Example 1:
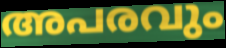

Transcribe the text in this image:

അപരവും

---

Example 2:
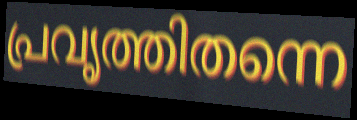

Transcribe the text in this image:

പ്രവൃത്തിതന്നെ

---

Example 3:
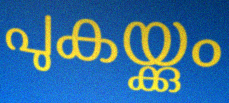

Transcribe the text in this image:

പുകയ്ക്കും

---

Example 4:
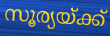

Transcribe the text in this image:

സൂര്യയ്ക്ക്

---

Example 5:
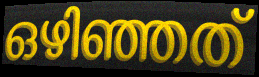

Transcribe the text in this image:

ഒഴിഞ്ഞത്